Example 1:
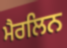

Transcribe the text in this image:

ਮੈਰਲਿਨ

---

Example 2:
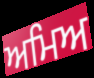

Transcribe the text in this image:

ਅਮਿਅ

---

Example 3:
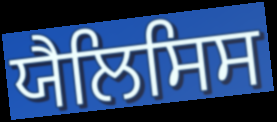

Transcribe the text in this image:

ਯੈਲਿਸਿਸ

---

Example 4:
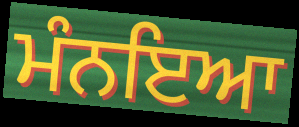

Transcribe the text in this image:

ਮੰਨਇਆ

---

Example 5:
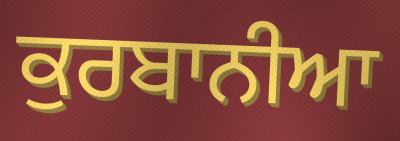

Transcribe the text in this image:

ਕੁਰਬਾਨੀਆ